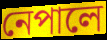
নেপালে